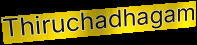
Thiruchadhagam